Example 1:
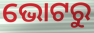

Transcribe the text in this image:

ଭୋଟରୁ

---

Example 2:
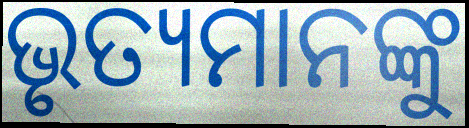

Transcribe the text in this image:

ଭୃତ୍ୟମାନଙ୍କୁ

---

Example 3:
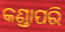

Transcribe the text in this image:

କଣ୍ଡାପରି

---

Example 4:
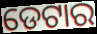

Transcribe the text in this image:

ଡେଟାର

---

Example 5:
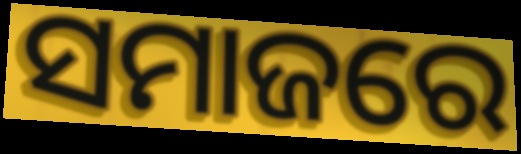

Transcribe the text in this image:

ସମାଜରେ